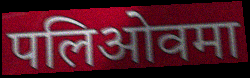
पलिओवमा